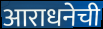
आराधनेची